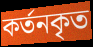
কর্তনকৃত